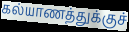
கல்யாணத்துக்குச்